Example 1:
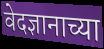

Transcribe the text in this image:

वेदज्ञानाच्या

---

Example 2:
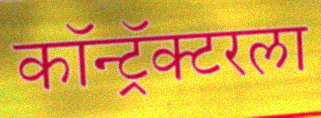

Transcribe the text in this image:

कॉन्ट्रॅक्टरला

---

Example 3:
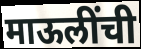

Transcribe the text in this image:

माऊलींची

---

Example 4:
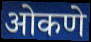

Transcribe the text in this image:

ओकणे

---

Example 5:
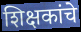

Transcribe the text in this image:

शिक्षकांचे